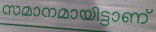
സമാനമായിട്ടാണ്